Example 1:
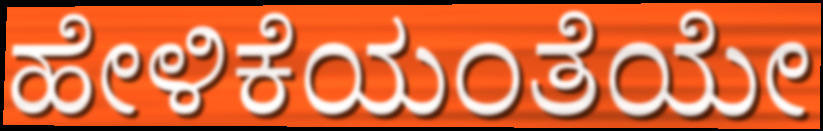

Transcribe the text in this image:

ಹೇಳಿಕೆಯಂತೆಯೇ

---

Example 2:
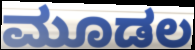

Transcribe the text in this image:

ಮೂಡಲ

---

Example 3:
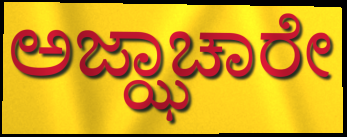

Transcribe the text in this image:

ಅಜ್ಝಾಚಾರೇ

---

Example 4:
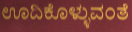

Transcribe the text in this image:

ಊದಿಕೊಳ್ಳುವಂತೆ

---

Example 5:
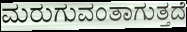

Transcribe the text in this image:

ಮರುಗುವಂತಾಗುತ್ತದೆ